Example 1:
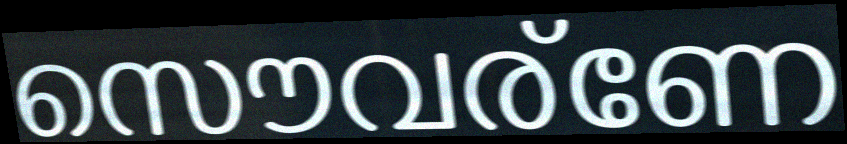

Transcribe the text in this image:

സൌവര്ണേ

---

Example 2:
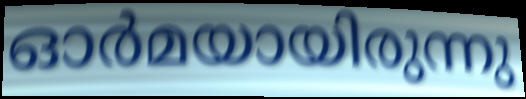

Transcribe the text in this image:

ഓർമയായിരുന്നു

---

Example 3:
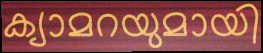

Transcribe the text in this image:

ക്യാമറയുമായി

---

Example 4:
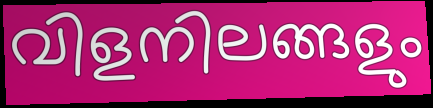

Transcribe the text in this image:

വിളനിലങ്ങളും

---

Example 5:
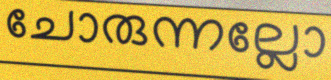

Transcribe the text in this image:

ചോരുന്നല്ലോ